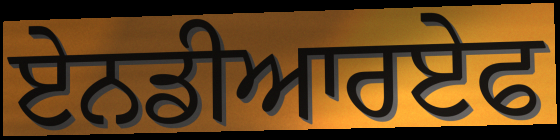
ਏਨਡੀਆਰਏਫ